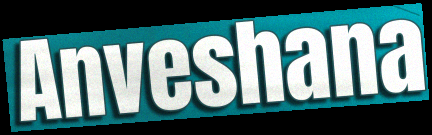
Anveshana